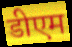
डीएम